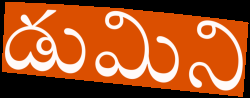
డుమిని